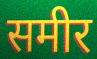
समीर